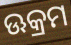
ଊକ୍ରମ